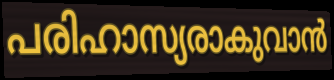
പരിഹാസ്യരാകുവാൻ